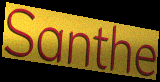
Santhe